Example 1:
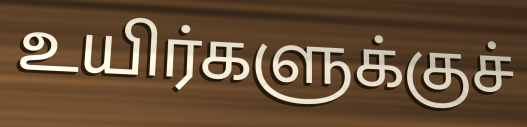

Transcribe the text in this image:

உயிர்களுக்குச்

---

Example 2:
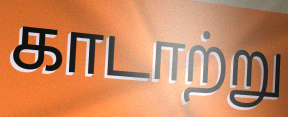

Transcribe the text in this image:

காடாற்று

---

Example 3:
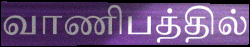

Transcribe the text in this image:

வாணிபத்தில்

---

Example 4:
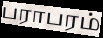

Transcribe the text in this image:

பராபரம்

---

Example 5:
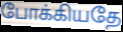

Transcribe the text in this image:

போக்கியதே